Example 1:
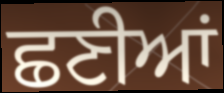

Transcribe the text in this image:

ਛਣੀਆਂ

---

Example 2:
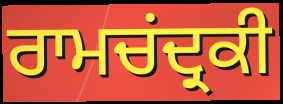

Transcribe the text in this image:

ਰਾਮਚਂਦ੍ਰਕੀ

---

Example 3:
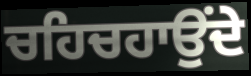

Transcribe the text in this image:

ਚਹਿਚਹਾਉਂਦੇ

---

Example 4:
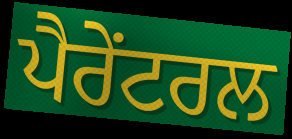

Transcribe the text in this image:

ਪੈਰੇਂਟਰਲ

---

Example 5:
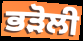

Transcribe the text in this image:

ਭੜੋਲੀ